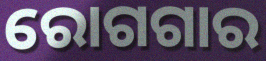
ରୋଗଗାର